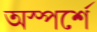
অস্পর্শে